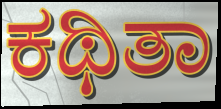
ಕಥಿತಾ